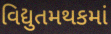
વિદ્યુતમથકમાં